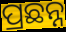
ପ୍ରଛନ୍ନ